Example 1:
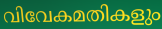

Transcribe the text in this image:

വിവേകമതികളും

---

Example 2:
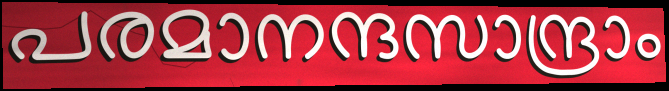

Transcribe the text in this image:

പരമാനന്ദസാന്ദ്രാം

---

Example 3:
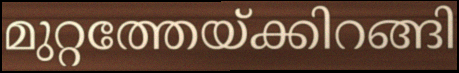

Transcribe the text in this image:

മുറ്റത്തേയ്ക്കിറങ്ങി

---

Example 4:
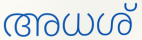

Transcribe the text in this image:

അധശ്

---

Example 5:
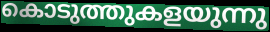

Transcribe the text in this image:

കൊടുത്തുകളയുന്നു